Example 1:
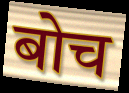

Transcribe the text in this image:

बोच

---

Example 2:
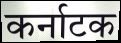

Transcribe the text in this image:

कर्नाटक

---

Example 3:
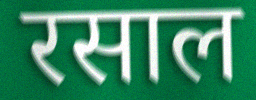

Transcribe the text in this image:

रसाल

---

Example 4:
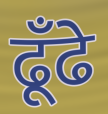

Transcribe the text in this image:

ढूँढे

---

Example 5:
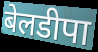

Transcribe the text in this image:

बेलडीपा